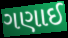
ગણાઈ